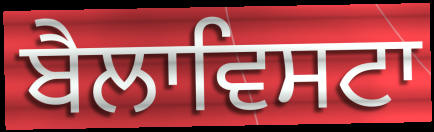
ਬੈਲਾਵਿਸਟਾ